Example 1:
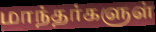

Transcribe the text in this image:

மாந்தர்களுள்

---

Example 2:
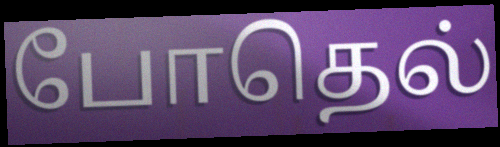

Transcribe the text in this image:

போதெல்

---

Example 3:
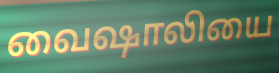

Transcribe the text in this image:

வைஷாலியை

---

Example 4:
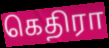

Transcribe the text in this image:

கெதிரா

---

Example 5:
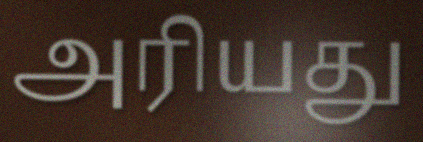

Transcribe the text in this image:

அரியது